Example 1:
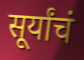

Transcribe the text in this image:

सूर्यांचं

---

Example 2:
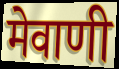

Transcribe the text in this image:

मेवाणी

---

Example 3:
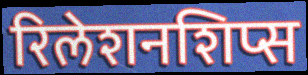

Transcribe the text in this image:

रिलेशनशिप्स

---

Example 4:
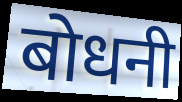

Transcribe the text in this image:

बोधनी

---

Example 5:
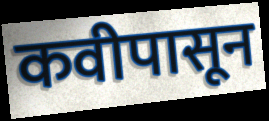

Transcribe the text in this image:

कवीपासून